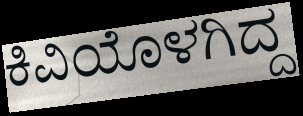
ಕಿವಿಯೊಳಗಿದ್ದ